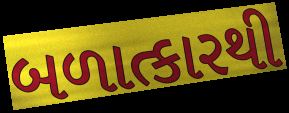
બળાત્કારથી